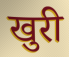
खुरी